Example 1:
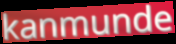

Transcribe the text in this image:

kanmunde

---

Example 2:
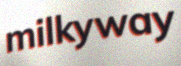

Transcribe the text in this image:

milkyway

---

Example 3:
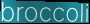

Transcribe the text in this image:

broccoli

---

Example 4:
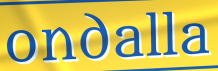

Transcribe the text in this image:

ondalla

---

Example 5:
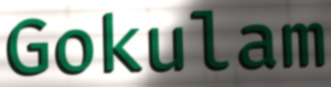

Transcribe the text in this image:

Gokulam